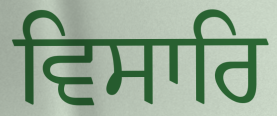
ਵਿਸਾਰਿ